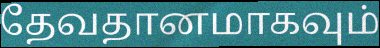
தேவதானமாகவும்